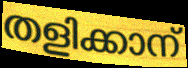
തളിക്കാന്